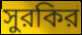
সুরকির